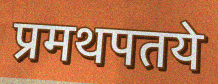
प्रमथपतये